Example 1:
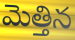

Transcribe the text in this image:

మెత్తిన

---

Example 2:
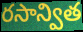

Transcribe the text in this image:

రసాన్విత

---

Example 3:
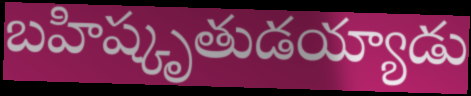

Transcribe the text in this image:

బహిష్కృతుడయ్యాడు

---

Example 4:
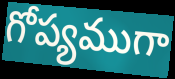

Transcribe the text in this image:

గోప్యముగా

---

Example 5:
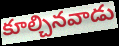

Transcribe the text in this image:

కూల్చినవాడు